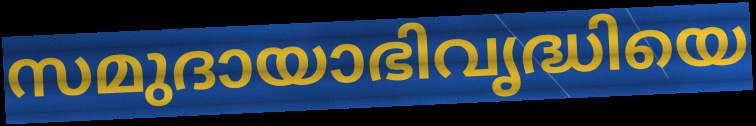
സമുദായാഭിവൃദ്ധിയെ